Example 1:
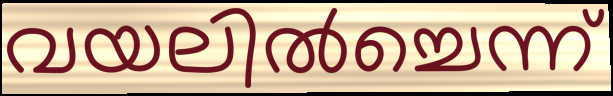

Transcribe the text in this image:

വയലിൽച്ചെന്ന്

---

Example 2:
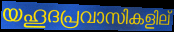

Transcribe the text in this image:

യഹൂദപ്രവാസികളില്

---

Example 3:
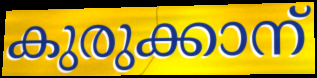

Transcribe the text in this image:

കുരുക്കാന്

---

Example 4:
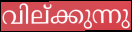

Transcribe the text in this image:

വില്ക്കുന്നു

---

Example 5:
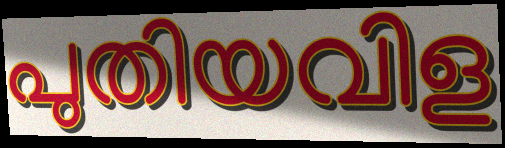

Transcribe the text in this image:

പുതിയവിള